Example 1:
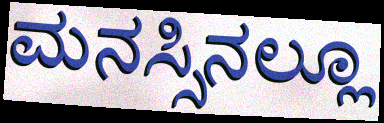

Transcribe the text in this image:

ಮನಸ್ಸಿನಲ್ಲೂ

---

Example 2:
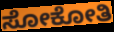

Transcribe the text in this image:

ಸೋಕೋತಿ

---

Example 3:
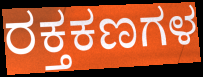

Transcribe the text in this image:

ರಕ್ತಕಣಗಳ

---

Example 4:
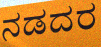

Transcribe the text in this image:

ನಡದರ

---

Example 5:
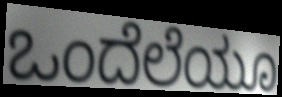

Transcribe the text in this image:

ಒಂದೆಲೆಯೂ